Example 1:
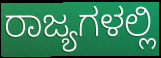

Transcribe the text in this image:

ರಾಜ್ಯಗಳಲ್ಲಿ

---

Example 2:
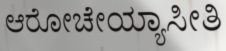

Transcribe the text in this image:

ಆರೋಚೇಯ್ಯಾಸೀತಿ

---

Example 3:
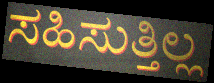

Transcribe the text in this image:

ಸಹಿಸುತ್ತಿಲ್ಲ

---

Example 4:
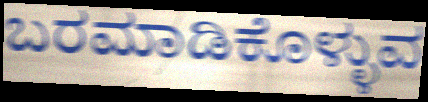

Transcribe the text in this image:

ಬರಮಾಡಿಕೊಳ್ಳುವ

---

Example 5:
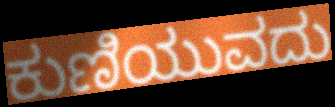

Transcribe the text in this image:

ಕುಣಿಯುವದು